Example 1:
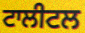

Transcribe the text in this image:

ਟਾਲੀਟਲ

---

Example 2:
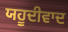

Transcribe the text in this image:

ਯਹੂਦੀਵਾਦ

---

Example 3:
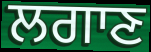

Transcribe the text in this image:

ਲਗਾਣ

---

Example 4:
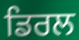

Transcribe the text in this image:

ਡਿਰਲ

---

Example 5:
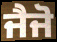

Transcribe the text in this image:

ਜੈਜੋ